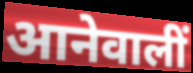
आनेवालीं